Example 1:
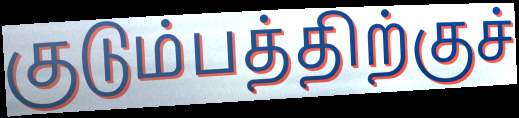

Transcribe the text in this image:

குடும்பத்திற்குச்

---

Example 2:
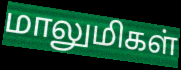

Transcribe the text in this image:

மாலுமிகள்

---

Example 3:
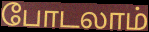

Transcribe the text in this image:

போடலாம்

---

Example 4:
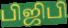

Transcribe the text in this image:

பிஜிபி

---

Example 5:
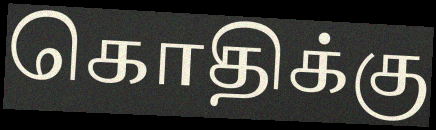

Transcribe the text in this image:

கொதிக்கு